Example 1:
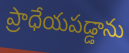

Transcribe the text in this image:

ప్రాధేయపడ్డాను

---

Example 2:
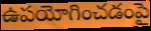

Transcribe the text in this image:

ఉపయోగించడంపై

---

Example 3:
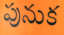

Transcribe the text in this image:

పునుక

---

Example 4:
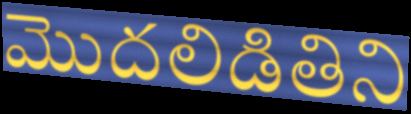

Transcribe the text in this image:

మొదలిడితిని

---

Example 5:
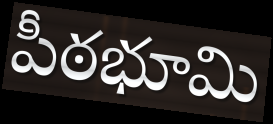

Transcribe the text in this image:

పీఠభూమి